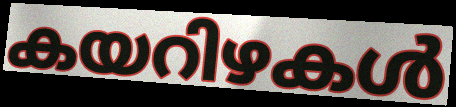
കയറിഴകൾ